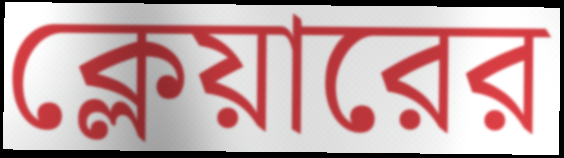
ক্লেয়ারের